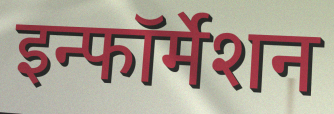
इन्फॉर्मेशन